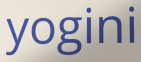
yogini